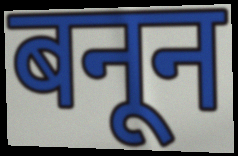
बनून